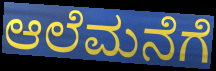
ಆಲೆಮನೆಗೆ